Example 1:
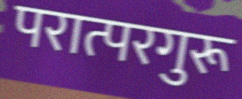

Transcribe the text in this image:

परात्परगुरू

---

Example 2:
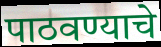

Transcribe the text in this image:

पाठवण्याचे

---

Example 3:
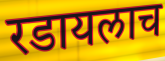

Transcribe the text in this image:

रडायलाच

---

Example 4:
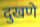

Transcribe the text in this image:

दुखणे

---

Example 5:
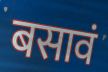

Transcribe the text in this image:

बसावं